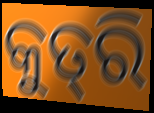
କୁତ୍‌ରି